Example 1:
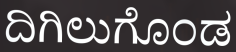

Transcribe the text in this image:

ದಿಗಿಲುಗೊಂಡ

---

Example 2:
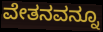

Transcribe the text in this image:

ವೇತನವನ್ನೂ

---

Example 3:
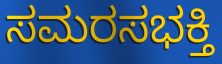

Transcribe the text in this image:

ಸಮರಸಭಕ್ತಿ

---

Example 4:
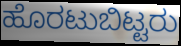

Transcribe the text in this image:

ಹೊರಟುಬಿಟ್ಟರು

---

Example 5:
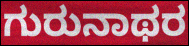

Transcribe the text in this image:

ಗುರುನಾಥರ